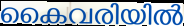
കൈവരിയിൽ